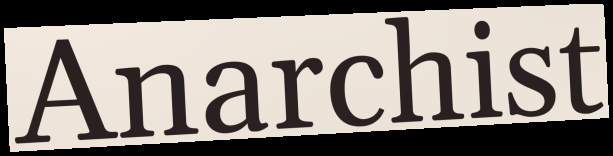
Anarchist